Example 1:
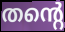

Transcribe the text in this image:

തന്റെ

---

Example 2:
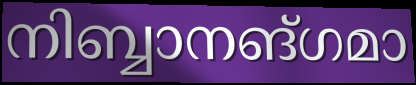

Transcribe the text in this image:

നിബ്ബാനങ്ഗമാ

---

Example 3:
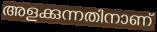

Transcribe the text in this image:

അളക്കുന്നതിനാണ്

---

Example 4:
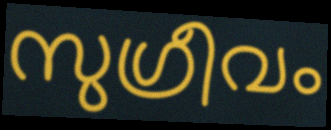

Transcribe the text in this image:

സുഗ്രീവം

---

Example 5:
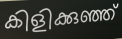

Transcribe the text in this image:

കിളിക്കുഞ്ഞ്